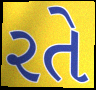
રતે